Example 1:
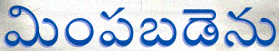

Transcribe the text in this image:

మింపబడెను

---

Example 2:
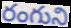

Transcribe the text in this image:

రంగుని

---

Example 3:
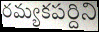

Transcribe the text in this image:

రమ్యకపర్దిని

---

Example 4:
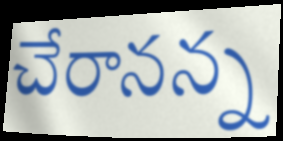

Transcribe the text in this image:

చేరానన్న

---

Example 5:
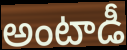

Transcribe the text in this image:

అంటాడీ